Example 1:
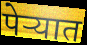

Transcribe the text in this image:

पेऱ्यात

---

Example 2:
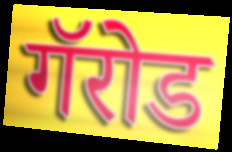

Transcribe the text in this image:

गॅरोड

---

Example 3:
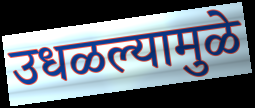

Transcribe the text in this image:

उधळल्यामुळे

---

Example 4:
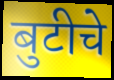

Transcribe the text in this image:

बुटीचे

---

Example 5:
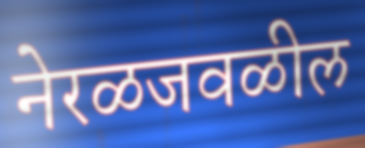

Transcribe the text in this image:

नेरळजवळील